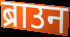
ब्राउन